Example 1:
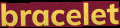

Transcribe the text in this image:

bracelet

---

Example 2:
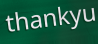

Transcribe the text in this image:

thankyu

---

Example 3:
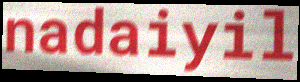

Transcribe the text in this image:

nadaiyil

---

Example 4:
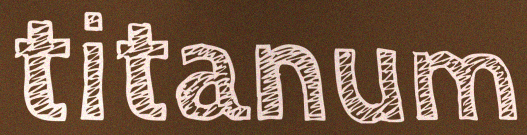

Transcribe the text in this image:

titanum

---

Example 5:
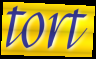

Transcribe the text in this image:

tort